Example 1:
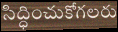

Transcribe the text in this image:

సిద్ధించుకోగలరు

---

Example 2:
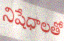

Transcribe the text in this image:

నిషేధాలతో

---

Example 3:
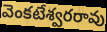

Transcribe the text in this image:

వెంకటేశ్వరరావు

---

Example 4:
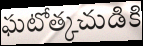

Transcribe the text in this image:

ఘటోత్కచుడికి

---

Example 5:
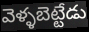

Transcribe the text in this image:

వెళ్ళబెట్టేడు